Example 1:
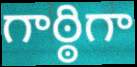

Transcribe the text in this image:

గాఠ్ఠిగా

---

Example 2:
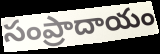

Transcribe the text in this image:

సంప్రాదాయం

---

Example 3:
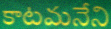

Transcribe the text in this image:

కాటమనేని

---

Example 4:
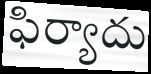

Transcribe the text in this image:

ఫిర్యాదు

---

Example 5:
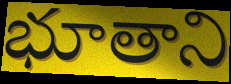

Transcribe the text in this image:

భూతాని